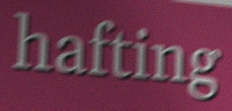
hafting